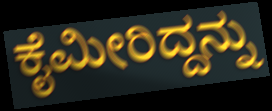
ಕೈಮೀರಿದ್ದನ್ನು